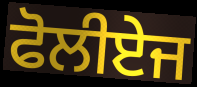
ਫੋਲੀਏਜ